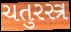
ચતુરસ્ત્ર